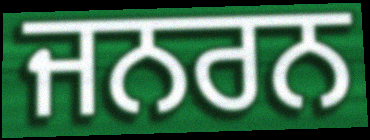
ਜਨਰਨ